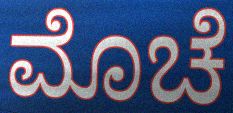
ಮೊಚೆ